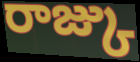
రాజ్కు